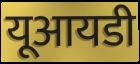
यूआयडी